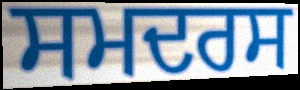
ਸਮਦਰਸ